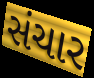
સંચાર